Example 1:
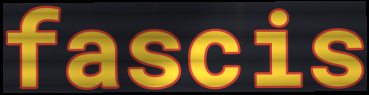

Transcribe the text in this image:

fascis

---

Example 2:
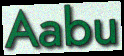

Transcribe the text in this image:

Aabu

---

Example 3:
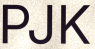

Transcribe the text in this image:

PJK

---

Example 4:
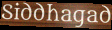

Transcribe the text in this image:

Siddhagad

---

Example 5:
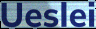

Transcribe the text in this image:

Ueslei